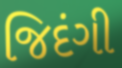
જિદંગી